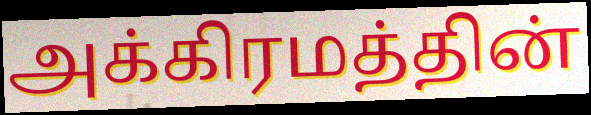
அக்கிரமத்தின்